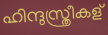
ഹിന്ദുസ്ത്രീകള്